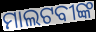
ମାଲଟବୀଙ୍କ